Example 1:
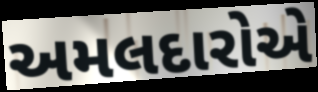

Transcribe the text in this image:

અમલદારોએ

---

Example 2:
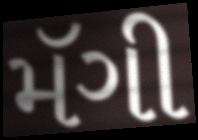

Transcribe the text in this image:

મૅગી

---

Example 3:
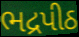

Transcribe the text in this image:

ભદ્રપીઠ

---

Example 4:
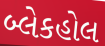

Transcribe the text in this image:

બ્લેકહોલ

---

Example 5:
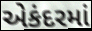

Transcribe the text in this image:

એકંદરમાં